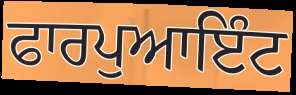
ਫਾਰਪੁਆਇੰਟ